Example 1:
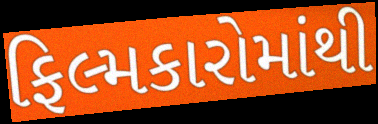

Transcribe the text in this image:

ફિલ્મકારોમાંથી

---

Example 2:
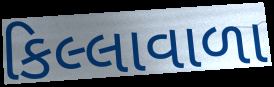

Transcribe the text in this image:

કિલ્લાવાળા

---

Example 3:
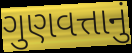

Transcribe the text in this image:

ગુણવત્તાનું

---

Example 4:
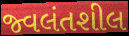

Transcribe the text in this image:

જ્વલંતશીલ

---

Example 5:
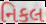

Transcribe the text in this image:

નિકલ